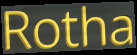
Rotha